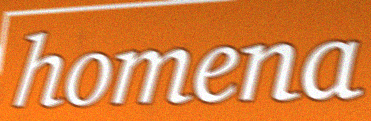
homena